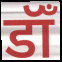
डॉँ